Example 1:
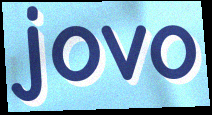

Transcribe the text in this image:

jovo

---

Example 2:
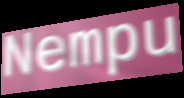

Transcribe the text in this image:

Nempu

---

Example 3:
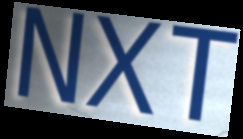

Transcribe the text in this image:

NXT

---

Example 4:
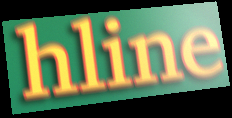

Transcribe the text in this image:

hline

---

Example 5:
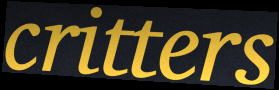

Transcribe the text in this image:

critters